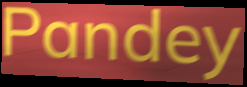
Pandey